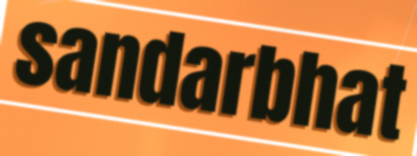
sandarbhat